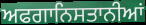
ਅਫਗਾਨਿਸਤਾਨੀਆਂ